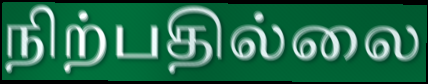
நிற்பதில்லை